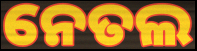
ନେତଲ